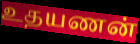
உதயணன்